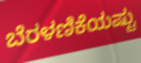
ಬೆರಳಣಿಕೆಯಷ್ಟು